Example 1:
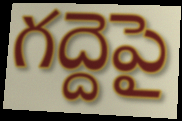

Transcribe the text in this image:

గద్దెపై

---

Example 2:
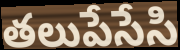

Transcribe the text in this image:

తలుపేసేసి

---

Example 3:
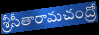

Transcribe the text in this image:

శ్రీసీతారామచంద్రో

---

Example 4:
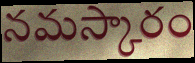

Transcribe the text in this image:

నమస్కారం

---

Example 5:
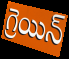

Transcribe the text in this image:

గ్రెయిన్